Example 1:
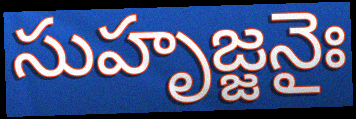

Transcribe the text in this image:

సుహృజ్జనైః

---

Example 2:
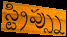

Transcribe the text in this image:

స్ట్రిప్స్ను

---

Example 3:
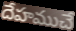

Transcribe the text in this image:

దేహముచే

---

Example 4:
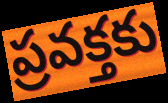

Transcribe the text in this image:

ప్రవక్తకు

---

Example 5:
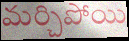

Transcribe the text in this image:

మర్చిపోయి